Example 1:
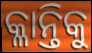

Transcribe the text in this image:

କ୍ଳାନ୍ତିକୁ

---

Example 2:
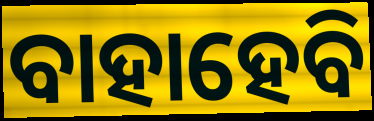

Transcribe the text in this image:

ବାହାହେବି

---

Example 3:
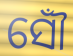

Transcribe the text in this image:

ସୌଁ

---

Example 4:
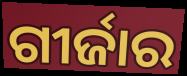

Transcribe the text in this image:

ଗୀର୍ଜାର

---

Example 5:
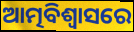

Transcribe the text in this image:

ଆତ୍ମବିଶ୍ଵାସରେ